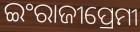
ଇଂରାଜୀପ୍ରେମୀ